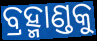
ବ୍ରହ୍ମାଣ୍ଡକୁ